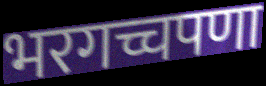
भरगच्चपणा